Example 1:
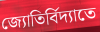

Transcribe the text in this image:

জ্যোতির্বিদ্যাতে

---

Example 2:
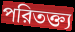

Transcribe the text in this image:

পরিতক্ত্য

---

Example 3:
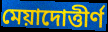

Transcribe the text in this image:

মেয়াদোত্তীর্ণ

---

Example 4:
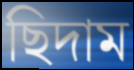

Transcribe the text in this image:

ছিদাম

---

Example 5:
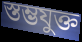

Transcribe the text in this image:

স্তম্ভযুক্ত